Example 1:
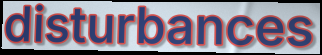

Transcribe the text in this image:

disturbances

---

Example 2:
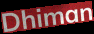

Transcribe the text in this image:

Dhiman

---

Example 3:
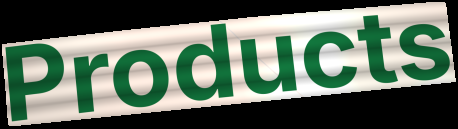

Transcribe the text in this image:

Products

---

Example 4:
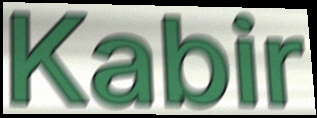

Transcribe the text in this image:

Kabir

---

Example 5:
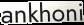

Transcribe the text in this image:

ankhoni